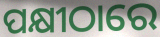
ପକ୍ଷୀଠାରେ